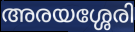
അരയശ്ശേരി